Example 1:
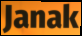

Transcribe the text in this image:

Janak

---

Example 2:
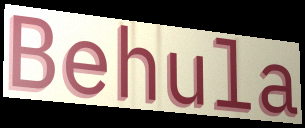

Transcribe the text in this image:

Behula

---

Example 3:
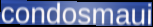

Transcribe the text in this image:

condosmaui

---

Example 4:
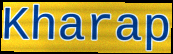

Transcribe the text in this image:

Kharap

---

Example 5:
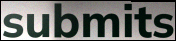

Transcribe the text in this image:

submits